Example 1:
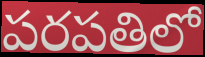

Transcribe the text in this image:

పరపతిలో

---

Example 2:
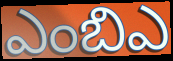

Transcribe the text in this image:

ఎంబిఎ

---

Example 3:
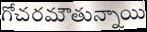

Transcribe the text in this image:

గోచరమౌతున్నాయి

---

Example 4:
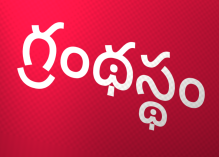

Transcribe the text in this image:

గ్రంథస్థం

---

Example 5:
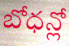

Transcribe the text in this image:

బోధన్లో